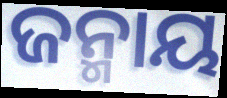
ଜନ୍ମାୟ